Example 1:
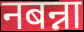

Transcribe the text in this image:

नबन्ना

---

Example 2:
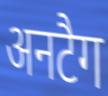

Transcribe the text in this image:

अनटैग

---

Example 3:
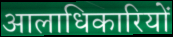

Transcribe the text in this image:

आलाधिकारियों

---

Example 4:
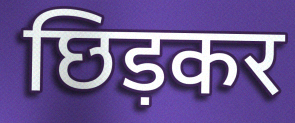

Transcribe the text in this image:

छिड़कर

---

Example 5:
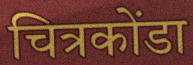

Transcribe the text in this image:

चित्रकोंडा